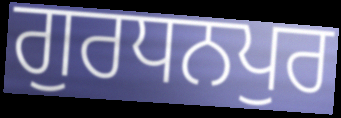
ਗੁਰਧਨਪੁਰ